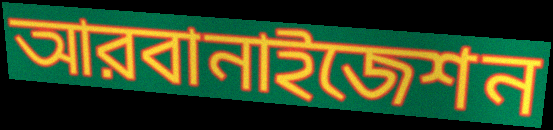
আরবানাইজেশন